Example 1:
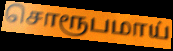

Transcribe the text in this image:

சொரூபமாய்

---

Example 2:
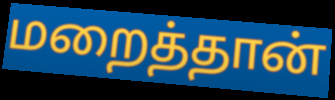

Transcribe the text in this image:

மறைத்தான்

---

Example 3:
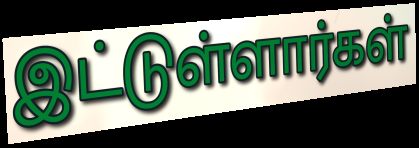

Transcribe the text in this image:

இட்டுள்ளார்கள்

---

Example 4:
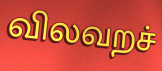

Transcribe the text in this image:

விலவறச்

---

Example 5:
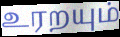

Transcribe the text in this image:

உரறயும்